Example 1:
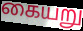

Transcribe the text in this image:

கையறு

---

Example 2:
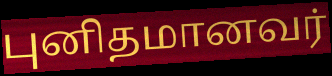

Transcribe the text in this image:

புனிதமானவர்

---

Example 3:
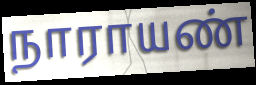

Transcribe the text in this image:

நாராயண்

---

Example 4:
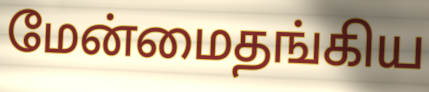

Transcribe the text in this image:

மேன்மைதங்கிய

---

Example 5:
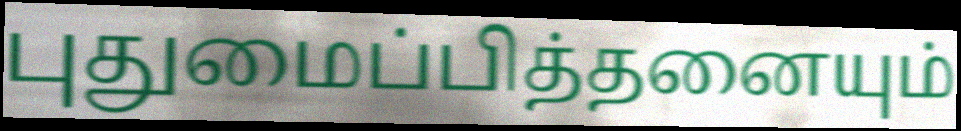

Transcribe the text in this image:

புதுமைப்பித்தனையும்